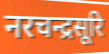
नरचन्द्रसूरि